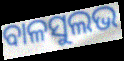
ବାଳସୁଲଭ